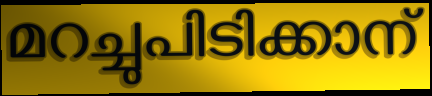
മറച്ചുപിടിക്കാന്